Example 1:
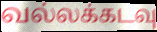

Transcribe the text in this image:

வல்லக்கடவு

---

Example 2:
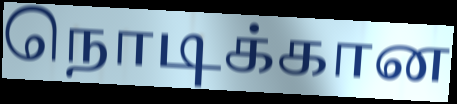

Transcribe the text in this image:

நொடிக்கான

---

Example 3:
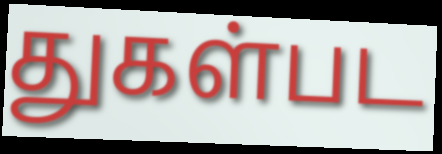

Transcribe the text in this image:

துகள்பட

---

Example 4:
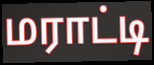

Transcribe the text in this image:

மராட்டி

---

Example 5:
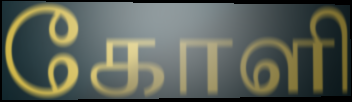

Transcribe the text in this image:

கோளி